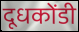
दूधकोंडी